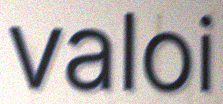
valoi